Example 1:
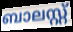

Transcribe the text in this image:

ബാലസ്റ്റ്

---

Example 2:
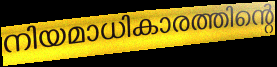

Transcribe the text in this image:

നിയമാധികാരത്തിന്റെ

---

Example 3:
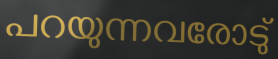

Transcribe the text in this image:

പറയുന്നവരോടു്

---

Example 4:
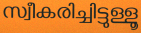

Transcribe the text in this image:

സ്വീകരിച്ചിട്ടുള്ളൂ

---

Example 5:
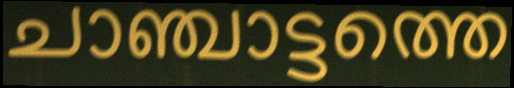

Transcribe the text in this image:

ചാഞ്ചാട്ടത്തെ